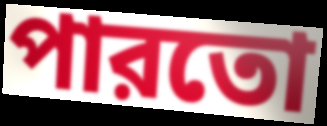
পারতো